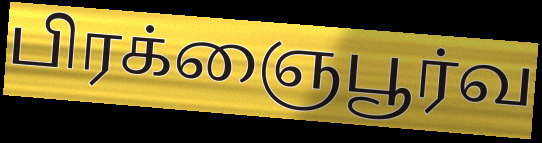
பிரக்ஞைபூர்வ